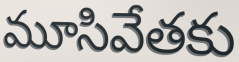
మూసివేతకు